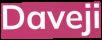
Daveji